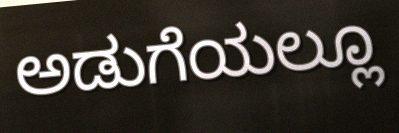
ಅಡುಗೆಯಲ್ಲೂ